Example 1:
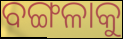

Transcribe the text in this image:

ବଙ୍ଗଳାକୁ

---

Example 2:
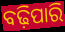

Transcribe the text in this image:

ବଢ଼ିପାରି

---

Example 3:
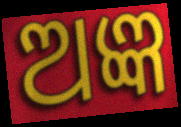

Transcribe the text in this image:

ଅଜ୍ଞ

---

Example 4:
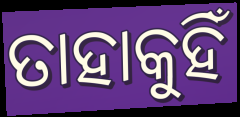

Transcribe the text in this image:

ତାହାକୁହିଁ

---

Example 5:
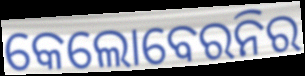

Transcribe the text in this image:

କେଲୋବେରନିର